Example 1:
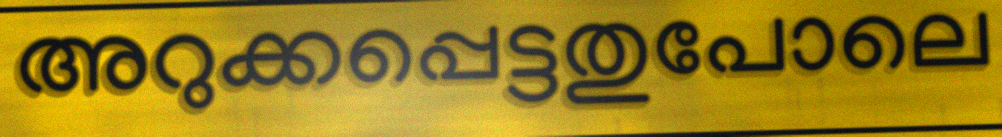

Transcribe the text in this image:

അറുക്കപ്പെട്ടതുപോലെ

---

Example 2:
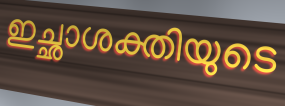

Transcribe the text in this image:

ഇച്ഛാശക്തിയുടെ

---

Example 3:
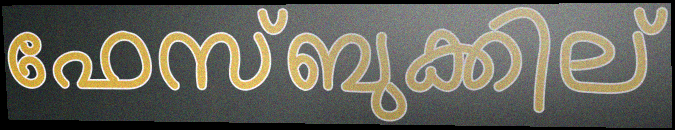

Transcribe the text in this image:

ഫേസ്ബുക്കില്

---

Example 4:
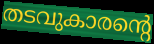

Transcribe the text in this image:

തടവുകാരന്റെ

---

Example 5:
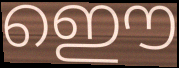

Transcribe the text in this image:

ഇൌ